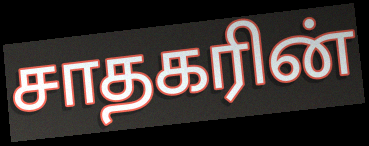
சாதகரின்